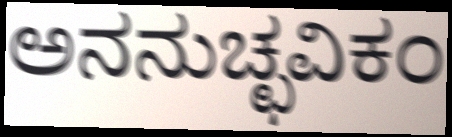
ಅನನುಚ್ಛವಿಕಂ